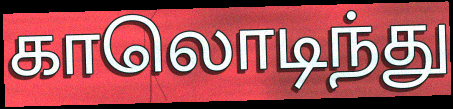
காலொடிந்து